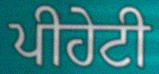
ਪੀਹੇਟੀ